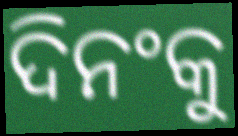
ଦିନଂକୁ